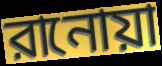
রানোয়া